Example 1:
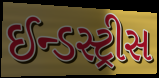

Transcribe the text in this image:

ઈન્ડસ્ટ્રીસ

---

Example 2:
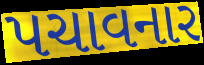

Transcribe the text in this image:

પચાવનાર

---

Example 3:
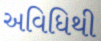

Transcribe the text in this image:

અવિધિથી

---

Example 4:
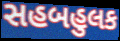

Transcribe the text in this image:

સહબહુલક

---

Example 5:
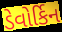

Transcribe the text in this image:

ડેવોર્કિન